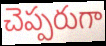
చెప్పరుగా